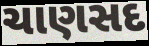
ચાણસદ